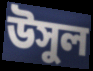
উসুল